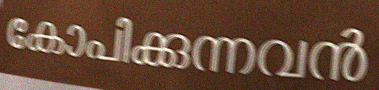
കോപിക്കുന്നവൻ